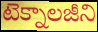
టెక్నాలజీని